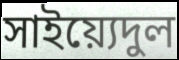
সাইয়্যেদুল